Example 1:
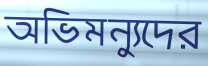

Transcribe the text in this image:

অভিমন্যুদের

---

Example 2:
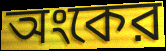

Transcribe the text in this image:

অংকের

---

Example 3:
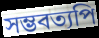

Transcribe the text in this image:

সম্ভবত্যপি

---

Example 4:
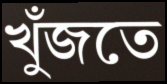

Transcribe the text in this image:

খুঁজতে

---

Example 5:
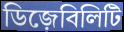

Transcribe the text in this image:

ডিজ়েবিলিটি